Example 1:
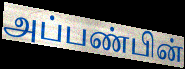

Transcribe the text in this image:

அப்பண்பின்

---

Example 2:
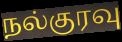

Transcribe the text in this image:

நல்குரவு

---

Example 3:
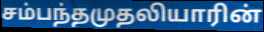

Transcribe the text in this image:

சம்பந்தமுதலியாரின்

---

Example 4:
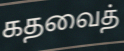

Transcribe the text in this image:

கதவைத்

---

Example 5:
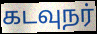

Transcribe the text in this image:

கடவுநர்